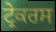
ਟ੍ਰੇਕਰਸ